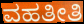
ವಹತೀತಿ